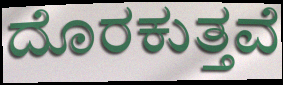
ದೊರಕುತ್ತವೆ